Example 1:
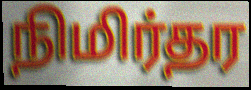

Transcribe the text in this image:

நிமிர்தர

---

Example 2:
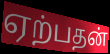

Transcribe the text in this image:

ஏற்பதன்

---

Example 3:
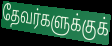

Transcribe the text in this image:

தேவர்களுக்குக்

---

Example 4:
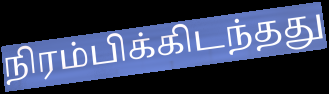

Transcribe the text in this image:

நிரம்பிக்கிடந்தது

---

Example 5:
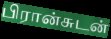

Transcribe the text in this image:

பிரான்சுடன்